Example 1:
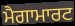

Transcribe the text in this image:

ਮੈਗਾਮਾਰਟ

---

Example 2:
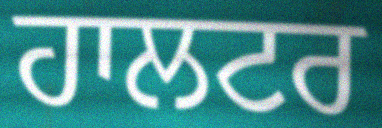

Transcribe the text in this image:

ਹਾਲਟਰ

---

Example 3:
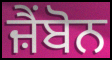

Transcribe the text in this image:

ਜ਼ੈਂਬੋਨ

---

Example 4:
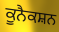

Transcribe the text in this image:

ਕੂਨੈਕਸ਼ਨ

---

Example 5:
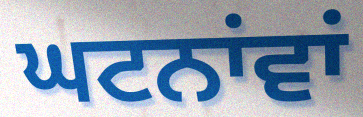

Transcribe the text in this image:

ਘਟਨਾਂਵਾਂ